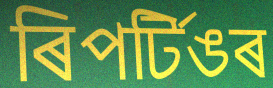
ৰিপৰ্টিঙৰ